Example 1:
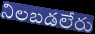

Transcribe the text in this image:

నిలబడలేరు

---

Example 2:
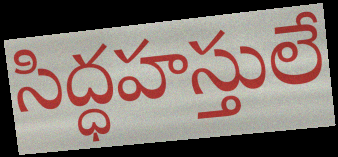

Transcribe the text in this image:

సిద్ధహస్తులే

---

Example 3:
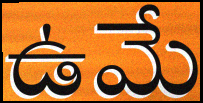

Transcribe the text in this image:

ఉమే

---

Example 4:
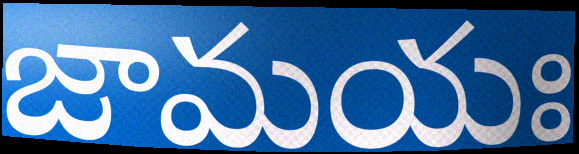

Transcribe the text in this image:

జామయః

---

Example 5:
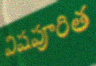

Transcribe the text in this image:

విషపూరిత